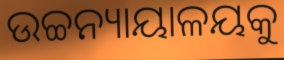
ଉଚ୍ଚନ୍ୟାୟାଳୟକୁ